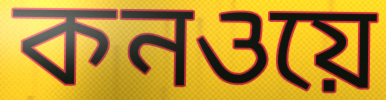
কনওয়ে